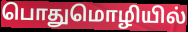
பொதுமொழியில்